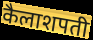
कैलाशपती